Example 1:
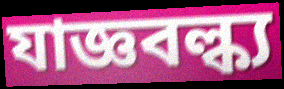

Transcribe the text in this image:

যাজ্ঞবল্ক্য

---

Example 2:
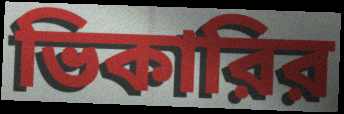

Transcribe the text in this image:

ভিকারির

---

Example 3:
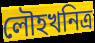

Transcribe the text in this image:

লৌহখনিত্র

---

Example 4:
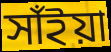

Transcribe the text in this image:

সাঁইয়া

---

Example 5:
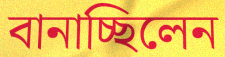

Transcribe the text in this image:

বানাচ্ছিলেন